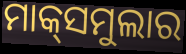
ମାକ୍‌ସମୁଲାର